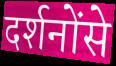
दर्शनोंसे